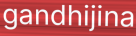
gandhijina